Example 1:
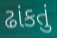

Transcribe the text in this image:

ઢાંકતું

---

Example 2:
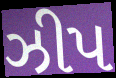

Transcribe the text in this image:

ઝીપ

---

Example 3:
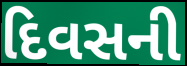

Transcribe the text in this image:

દિવસની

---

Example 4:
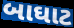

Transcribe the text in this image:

બાઘાટ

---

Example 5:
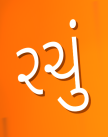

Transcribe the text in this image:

રચું